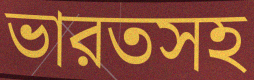
ভারতসহ